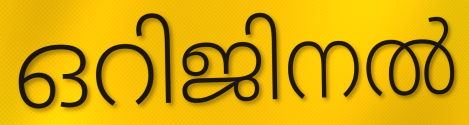
ഒറിജിനൽ